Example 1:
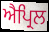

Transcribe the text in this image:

ਐਪ੍ਰਿਲ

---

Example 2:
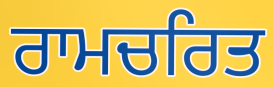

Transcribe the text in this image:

ਰਾਮਚਰਿਤ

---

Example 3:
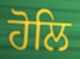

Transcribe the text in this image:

ਹੋਲਿ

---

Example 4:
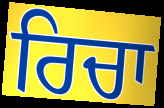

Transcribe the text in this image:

ਰਿਚਾ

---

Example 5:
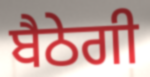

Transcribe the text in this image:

ਬੈਠੇਗੀ